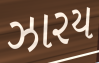
ઝારય